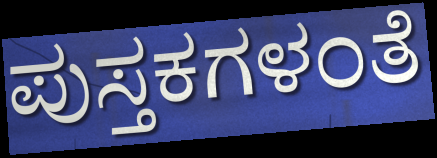
ಪುಸ್ತಕಗಳಂತೆ